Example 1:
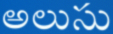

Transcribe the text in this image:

అలుసు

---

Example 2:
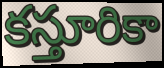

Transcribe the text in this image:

కస్తూరికా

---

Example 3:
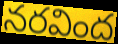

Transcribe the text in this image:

నరవింద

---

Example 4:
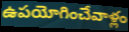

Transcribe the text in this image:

ఉపయోగించేవాళ్లం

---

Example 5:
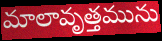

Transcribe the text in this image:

మాలావృత్తమును